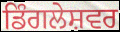
ਡਿੰਗਲੇਸ਼ਵਰ